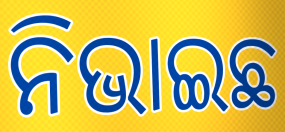
ନିଭାଇଛ